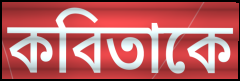
কবিতাকে